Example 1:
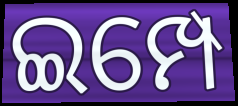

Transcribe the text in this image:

ଇମ୍ପେ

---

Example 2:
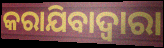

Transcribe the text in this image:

କରାଯିବାଦ୍ୱାରା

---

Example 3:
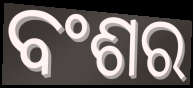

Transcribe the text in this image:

ବଂଶର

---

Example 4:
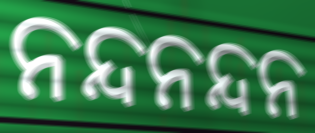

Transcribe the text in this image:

ନନ୍ଦନନ୍ଦନ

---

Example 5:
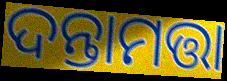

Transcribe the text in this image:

ଦନ୍ତାମତ୍ତା